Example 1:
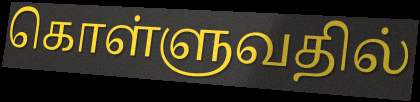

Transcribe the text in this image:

கொள்ளுவதில்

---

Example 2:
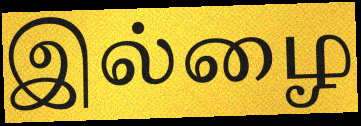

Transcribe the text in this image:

இல்ழை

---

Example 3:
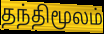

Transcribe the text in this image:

தந்திமூலம்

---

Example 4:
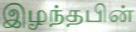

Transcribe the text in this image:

இழந்தபின்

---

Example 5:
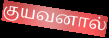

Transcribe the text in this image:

குயவனால்